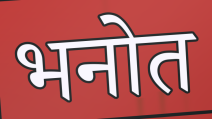
भनोत